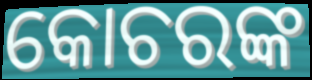
କୋଚରଙ୍କ